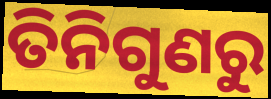
ତିନିଗୁଣରୁ